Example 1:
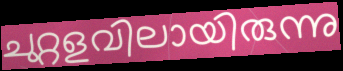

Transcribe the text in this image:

ചുറ്റളവിലായിരുന്നു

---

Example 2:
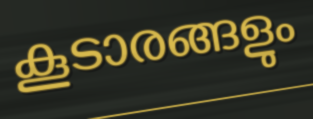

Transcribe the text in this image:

കൂടാരങ്ങളും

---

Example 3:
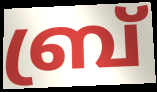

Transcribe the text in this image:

ബ്ര്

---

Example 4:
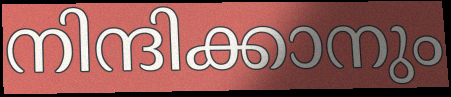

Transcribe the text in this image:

നിന്ദിക്കാനും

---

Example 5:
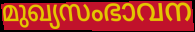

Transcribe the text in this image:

മുഖ്യസംഭാവന